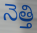
నెత్తి